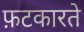
फ़टकारते